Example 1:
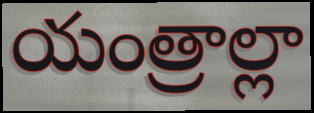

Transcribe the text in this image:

యంత్రాల్లా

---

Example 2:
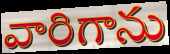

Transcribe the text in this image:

వారిగాను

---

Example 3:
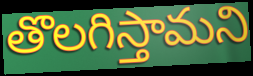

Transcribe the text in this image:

తొలగిస్తామని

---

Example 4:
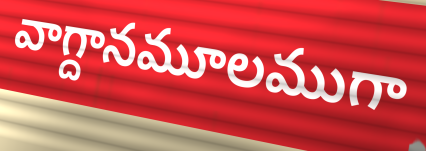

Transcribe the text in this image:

వాగ్దానమూలముగా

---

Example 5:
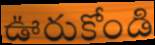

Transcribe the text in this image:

ఊరుకోండి